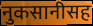
नुकसानीसह